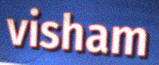
visham